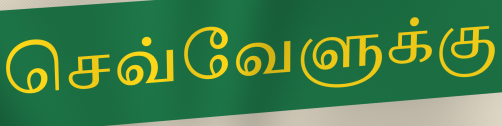
செவ்வேளுக்கு